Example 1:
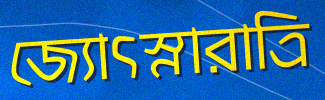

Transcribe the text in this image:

জ্যোৎস্নারাত্রি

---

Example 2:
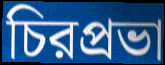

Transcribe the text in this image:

চিরপ্রভা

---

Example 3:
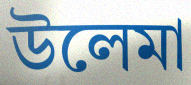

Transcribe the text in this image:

উলেমা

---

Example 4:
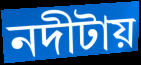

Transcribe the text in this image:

নদীটায়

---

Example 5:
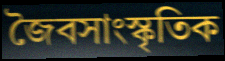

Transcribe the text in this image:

জৈবসাংস্কৃতিক